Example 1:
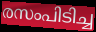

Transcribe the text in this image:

രസംപിടിച്ച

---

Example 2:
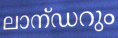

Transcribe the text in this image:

ലാന്ഡറും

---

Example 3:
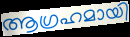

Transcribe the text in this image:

ആഗ്രഹമായി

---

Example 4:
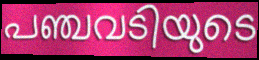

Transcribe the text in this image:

പഞ്ചവടിയുടെ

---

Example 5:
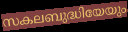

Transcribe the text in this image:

സകലബുദ്ധിയേയും